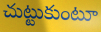
చుట్టుకుంటూ